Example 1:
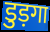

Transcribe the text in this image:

डुड़गा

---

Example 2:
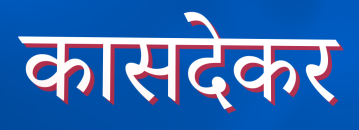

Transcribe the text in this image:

कासदेकर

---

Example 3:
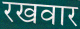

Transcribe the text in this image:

रखवार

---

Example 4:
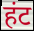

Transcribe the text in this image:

हंट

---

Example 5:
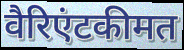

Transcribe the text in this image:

वैरिएंटकीमत